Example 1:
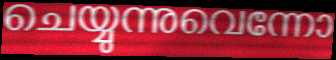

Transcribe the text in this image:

ചെയ്യുന്നുവെന്നോ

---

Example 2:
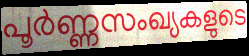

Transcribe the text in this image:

പൂർണ്ണസംഖ്യകളുടെ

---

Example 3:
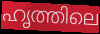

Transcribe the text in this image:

ഹൃത്തിലെ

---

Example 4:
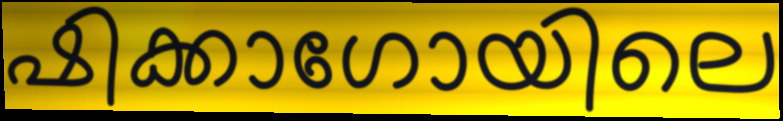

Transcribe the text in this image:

ഷിക്കാഗോയിലെ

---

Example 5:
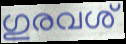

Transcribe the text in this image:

ഗുരവശ്